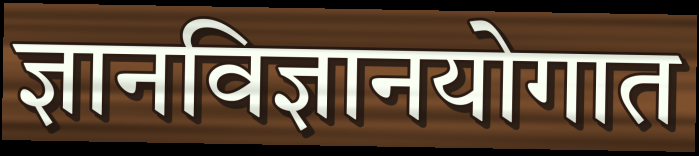
ज्ञानविज्ञानयोगात